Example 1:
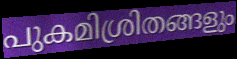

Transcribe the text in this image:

പുകമിശ്രിതങ്ങളും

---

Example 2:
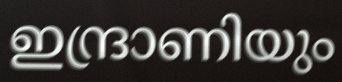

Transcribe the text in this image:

ഇന്ദ്രാണിയും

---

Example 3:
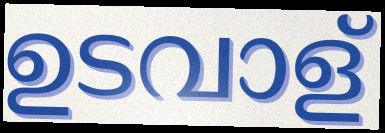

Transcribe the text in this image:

ഉടവാള്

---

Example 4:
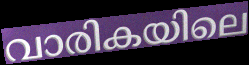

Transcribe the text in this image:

വാരികയിലെ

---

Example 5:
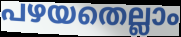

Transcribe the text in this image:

പഴയതെല്ലാം